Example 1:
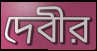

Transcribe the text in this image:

দেবীর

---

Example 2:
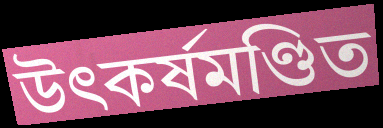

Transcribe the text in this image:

উৎকর্ষমণ্ডিত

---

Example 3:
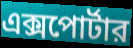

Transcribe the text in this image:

এক্সপোর্টার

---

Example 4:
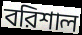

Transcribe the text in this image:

বরিশাল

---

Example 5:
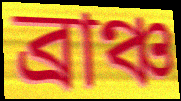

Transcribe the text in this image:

ব্রাঞ্চ